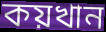
কয়খান